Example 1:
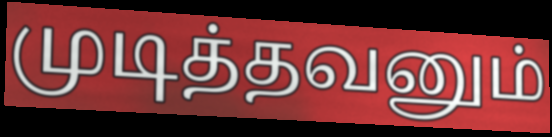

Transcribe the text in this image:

முடித்தவனும்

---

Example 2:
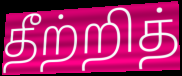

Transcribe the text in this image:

தீற்றித்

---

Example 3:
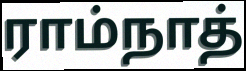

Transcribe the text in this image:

ராம்நாத்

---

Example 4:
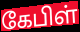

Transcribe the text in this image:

கேபிள்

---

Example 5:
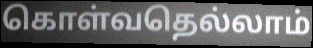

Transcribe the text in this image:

கொள்வதெல்லாம்